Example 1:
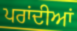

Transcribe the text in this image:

ਪਰਾਂਦੀਆਂ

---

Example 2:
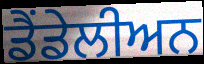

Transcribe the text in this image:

ਡੈਂਡੇਲੀਅਨ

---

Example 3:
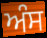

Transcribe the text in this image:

ਅੰਸ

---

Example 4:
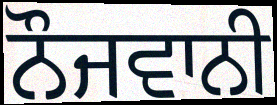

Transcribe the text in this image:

ਨੌਜਵਾਨੀ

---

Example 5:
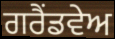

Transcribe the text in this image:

ਗਰੈਂਡਵੇਅ